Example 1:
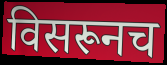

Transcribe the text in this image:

विसरूनच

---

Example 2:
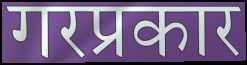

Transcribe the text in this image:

गरप्रकार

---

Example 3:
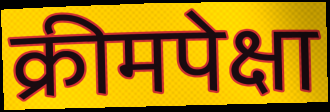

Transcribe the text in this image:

क्रीमपेक्षा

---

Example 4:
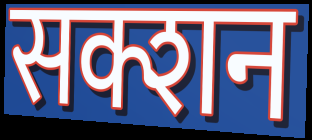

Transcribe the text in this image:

सक्शन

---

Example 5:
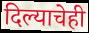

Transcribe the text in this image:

दिल्याचेही